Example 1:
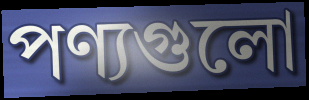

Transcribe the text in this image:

পণ্যগুলো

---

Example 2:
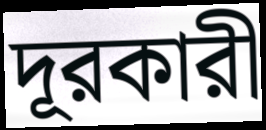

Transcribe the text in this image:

দূরকারী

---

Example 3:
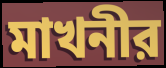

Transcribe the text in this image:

মাখনীর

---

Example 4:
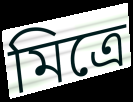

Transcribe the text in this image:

মিত্রে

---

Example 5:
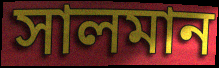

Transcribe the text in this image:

সালমান